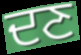
ਦਣ